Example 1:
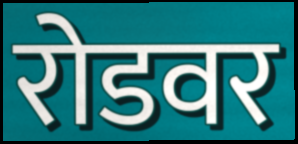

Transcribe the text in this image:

रोडवर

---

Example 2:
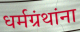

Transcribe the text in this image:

धर्मग्रंथांना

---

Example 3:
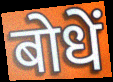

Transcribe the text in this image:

बोधें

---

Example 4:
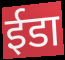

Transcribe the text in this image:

ईडा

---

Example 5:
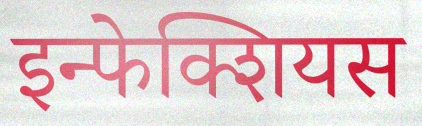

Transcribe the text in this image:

इन्फेक्शियस